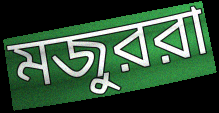
মজুররা